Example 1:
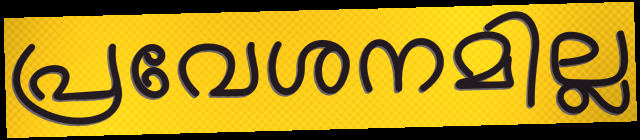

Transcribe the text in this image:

പ്രവേശനമില്ല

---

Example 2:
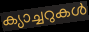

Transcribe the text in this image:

ക്യാച്ചറുകൾ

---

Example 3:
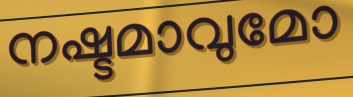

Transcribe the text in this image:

നഷ്ടമാവുമോ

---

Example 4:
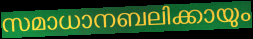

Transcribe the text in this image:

സമാധാനബലിക്കായും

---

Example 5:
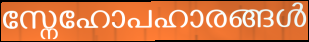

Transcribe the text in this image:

സ്നേഹോപഹാരങ്ങൾ